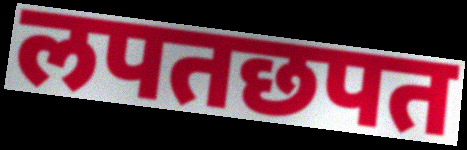
लपतछपत